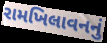
રામખિલાવનનું